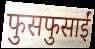
फुसफुसाईं